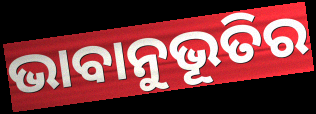
ଭାବାନୁଭୂତିର